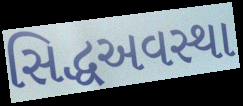
સિદ્ધઅવસ્થા